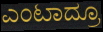
ಎಂಟಾದ್ರೂ